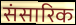
संसारिक